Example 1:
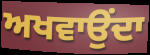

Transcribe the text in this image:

ਅਖਵਾਉਂਦਾ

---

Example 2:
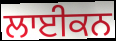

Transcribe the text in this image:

ਲਾਈਕਨ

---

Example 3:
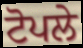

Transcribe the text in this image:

ਟੋਪਲੇ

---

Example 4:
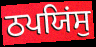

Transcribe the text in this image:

ਠਪਯਿਂਸੁ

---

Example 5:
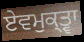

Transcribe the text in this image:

ਏਵਮੁਕ੍ਤ੍ਵਾ